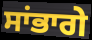
ਸਾਂਭਾਗੇ